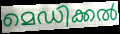
മെഡിക്കൽ